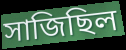
সাজিছিল